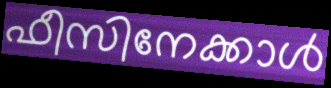
ഫീസിനേക്കാൾ